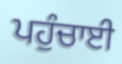
ਪਹੁੰਚਾਈ